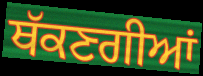
ਥੱਕਣਗੀਆਂ